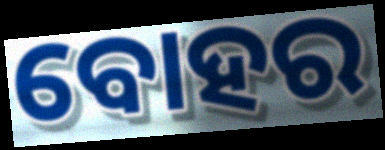
ବୋହର